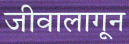
जीवालागून